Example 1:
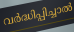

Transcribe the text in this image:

വർദ്ധിപ്പിച്ചാൽ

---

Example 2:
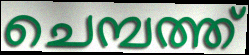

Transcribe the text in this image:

ചെമ്പത്ത്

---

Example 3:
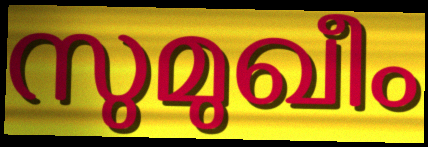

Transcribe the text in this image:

സുമുഖീം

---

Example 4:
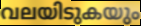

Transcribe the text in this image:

വലയിടുകയും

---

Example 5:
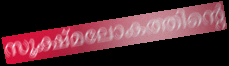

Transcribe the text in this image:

സൂക്ഷ്മലോകത്തിന്റെ